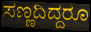
ಸಣ್ಣದಿದ್ದರೂ